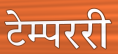
टेम्पररी